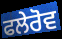
ਫਲੇਰੋਵ